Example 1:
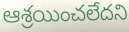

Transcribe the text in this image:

ఆశ్రయించలేదని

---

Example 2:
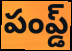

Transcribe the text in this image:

పంప్డ్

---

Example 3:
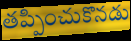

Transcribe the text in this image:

తప్పించుకొనడు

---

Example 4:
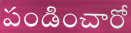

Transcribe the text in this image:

పండించారో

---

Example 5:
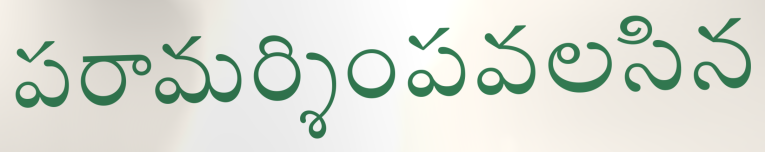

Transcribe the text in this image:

పరామర్శింపవలసిన